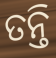
ତନ୍ତି